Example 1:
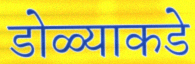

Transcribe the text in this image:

डोळ्याकडे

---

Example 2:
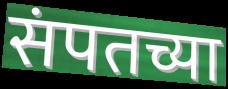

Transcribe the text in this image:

संपतच्या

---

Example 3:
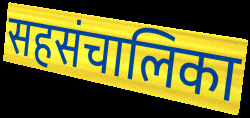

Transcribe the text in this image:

सहसंचालिका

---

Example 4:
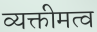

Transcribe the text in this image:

व्यक्तीमत्व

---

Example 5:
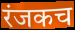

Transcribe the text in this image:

रंजकच